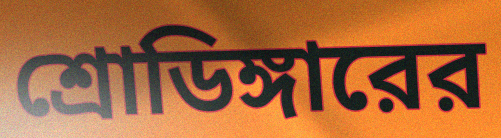
শ্রোডিঙ্গারের